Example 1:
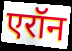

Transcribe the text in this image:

एरॉन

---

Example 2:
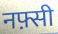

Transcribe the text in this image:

नफ़्सी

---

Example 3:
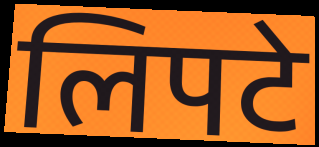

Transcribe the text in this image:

लिपटे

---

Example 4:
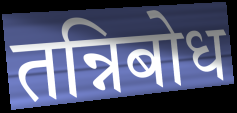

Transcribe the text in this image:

तन्निबोध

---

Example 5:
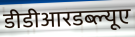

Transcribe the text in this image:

डीडीआरडब्ल्यूए